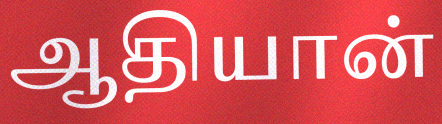
ஆதியான்